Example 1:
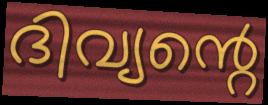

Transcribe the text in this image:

ദിവ്യന്റെ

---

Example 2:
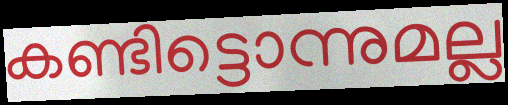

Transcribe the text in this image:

കണ്ടിട്ടൊന്നുമല്ല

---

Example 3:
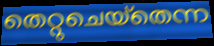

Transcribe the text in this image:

തെറ്റുചെയ്‌തെന്ന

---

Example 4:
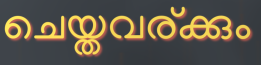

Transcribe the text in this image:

ചെയ്തവര്ക്കും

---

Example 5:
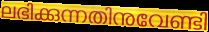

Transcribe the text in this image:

ലഭിക്കുന്നതിനുവേണ്ടി